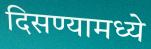
दिसण्यामध्ये